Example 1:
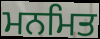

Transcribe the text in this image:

ਮਨਮਿਤ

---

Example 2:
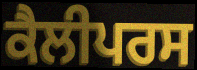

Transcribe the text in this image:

ਕੈਲੀਪਰਸ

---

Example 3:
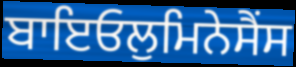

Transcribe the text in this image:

ਬਾਇਓਲੁਮਿਨੇਸੈਂਸ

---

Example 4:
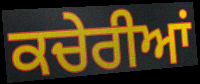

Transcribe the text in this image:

ਕਚੇਰੀਆਂ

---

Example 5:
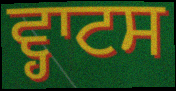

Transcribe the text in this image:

ਵ੍ਹਾਟਸ